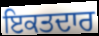
ਇਕਤਦਾਰ